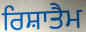
ਰਿਸ਼ਾਤੈਮ